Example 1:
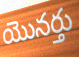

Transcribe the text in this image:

యొనర్తు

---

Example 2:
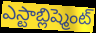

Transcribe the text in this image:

ఎస్టాబ్లిష్మెంట్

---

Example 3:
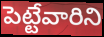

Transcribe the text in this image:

పెట్టేవారిని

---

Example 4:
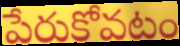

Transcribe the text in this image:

పేరుకోవటం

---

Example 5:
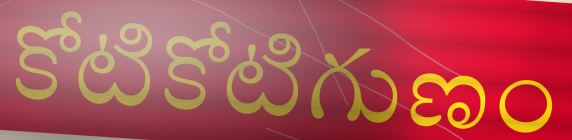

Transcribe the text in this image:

కోటికోటిగుణం